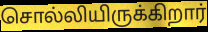
சொல்லியிருக்கிறார்